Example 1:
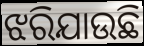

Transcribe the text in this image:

ଝରିଯାଉଛି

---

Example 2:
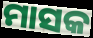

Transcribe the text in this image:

ମାସକ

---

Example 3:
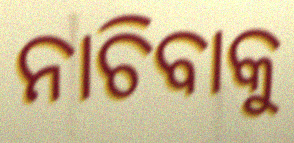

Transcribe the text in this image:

ନାଚିବାକୁ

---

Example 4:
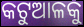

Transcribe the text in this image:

କଟୁଆଳକୁ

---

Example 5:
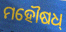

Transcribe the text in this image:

ମହୌଷଧ୍